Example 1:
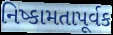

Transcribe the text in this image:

નિષ્કામતાપૂર્વક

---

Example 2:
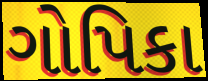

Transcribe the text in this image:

ગોપિકા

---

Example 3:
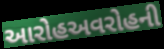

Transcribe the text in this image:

આરોહઅવરોહની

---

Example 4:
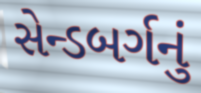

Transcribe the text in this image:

સેન્ડબર્ગનું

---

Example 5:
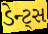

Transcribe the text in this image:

ડેન્ટ્સ